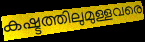
കഷ്ടത്തിലുമുള്ളവരെ